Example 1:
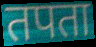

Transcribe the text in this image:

तपता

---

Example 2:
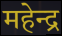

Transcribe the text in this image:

महेन्‍द्र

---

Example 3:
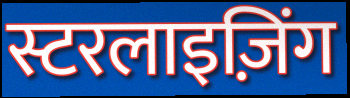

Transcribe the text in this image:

स्टरलाइज़िंग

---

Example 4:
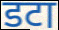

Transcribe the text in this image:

डटा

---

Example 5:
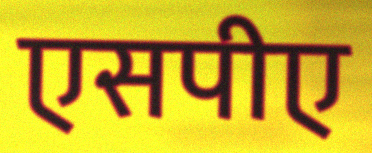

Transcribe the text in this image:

एसपीए